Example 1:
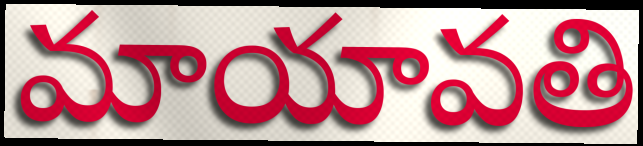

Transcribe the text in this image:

మాయావతి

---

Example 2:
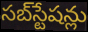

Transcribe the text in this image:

సబ్‌స్టేషన్లు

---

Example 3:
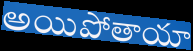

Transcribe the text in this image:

అయిపోతాయా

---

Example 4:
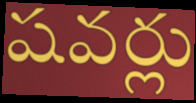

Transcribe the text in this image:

షవర్లు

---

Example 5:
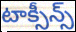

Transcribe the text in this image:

టాక్సీన్స్